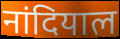
नांदियाल